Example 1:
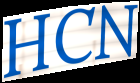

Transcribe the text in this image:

HCN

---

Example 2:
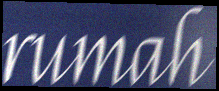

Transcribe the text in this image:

rumah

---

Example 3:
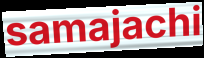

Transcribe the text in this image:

samajachi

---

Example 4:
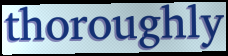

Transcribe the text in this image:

thoroughly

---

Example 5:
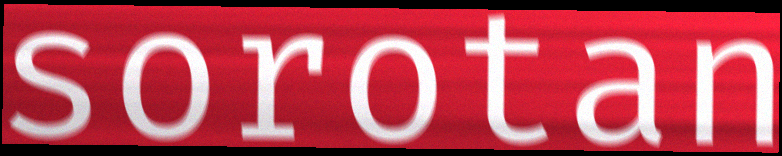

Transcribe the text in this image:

sorotan